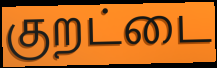
குறட்டை